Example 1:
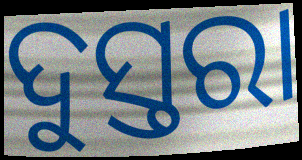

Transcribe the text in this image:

ଦୁସ୍ତରା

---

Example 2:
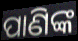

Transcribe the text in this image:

ପାଣିଙ୍କ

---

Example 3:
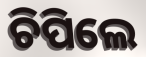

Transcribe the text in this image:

ଚିପିଲେ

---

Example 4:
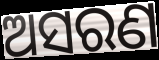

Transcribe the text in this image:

ଅସରଣ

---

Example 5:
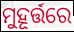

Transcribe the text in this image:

ମୁହୂର୍ତ୍ତରେ